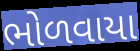
ભોળવાયા